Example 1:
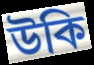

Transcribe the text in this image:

উকি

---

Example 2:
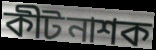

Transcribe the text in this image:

কীটনাশক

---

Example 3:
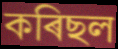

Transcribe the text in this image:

কৰিছল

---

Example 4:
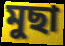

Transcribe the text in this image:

মুছা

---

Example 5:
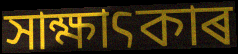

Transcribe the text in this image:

সাক্ষাৎকাৰ